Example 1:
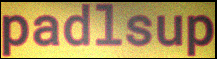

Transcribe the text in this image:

padlsup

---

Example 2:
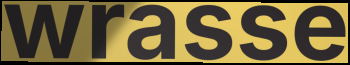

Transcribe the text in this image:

wrasse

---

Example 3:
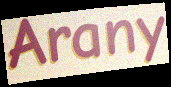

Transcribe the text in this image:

Arany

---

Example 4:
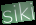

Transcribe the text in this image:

siki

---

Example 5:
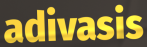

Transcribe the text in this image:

adivasis